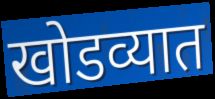
खोडव्यात